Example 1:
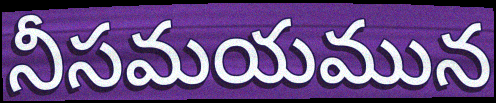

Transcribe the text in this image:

నీసమయమున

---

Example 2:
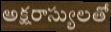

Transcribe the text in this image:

అక్షరాస్యులతో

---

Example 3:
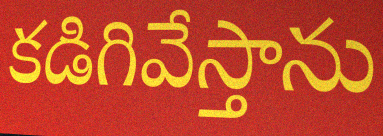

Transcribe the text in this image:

కడిగివేస్తాను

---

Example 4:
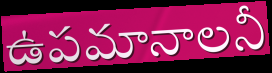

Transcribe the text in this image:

ఉపమానాలనీ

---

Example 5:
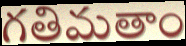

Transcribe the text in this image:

గతిమతాం